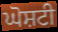
ਘੋਸ਼ਟੀ